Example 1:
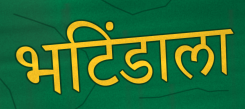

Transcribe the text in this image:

भटिंडाला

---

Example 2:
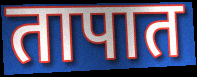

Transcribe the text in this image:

तापात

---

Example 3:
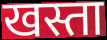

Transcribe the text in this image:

खस्ता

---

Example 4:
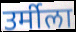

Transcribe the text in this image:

उर्मीला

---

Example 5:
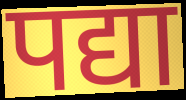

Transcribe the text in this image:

पद्या